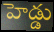
హెడ్డు